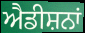
ਐਡੀਸ਼ਨਾਂ